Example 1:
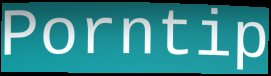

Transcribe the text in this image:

Porntip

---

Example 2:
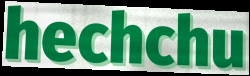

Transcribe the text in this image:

hechchu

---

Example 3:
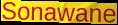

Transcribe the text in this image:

Sonawane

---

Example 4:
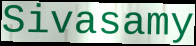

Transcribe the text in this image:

Sivasamy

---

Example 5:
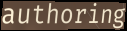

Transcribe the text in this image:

authoring